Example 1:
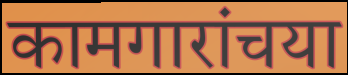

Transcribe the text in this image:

कामगारांचया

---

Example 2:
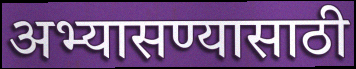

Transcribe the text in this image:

अभ्यासण्यासाठी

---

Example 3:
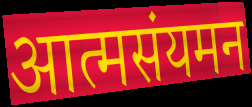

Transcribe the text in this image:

आत्मसंयमन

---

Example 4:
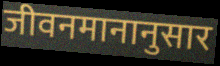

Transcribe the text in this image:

जीवनमानानुसार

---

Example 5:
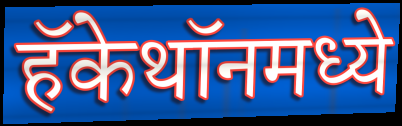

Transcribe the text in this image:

हॅकेथॉनमध्ये